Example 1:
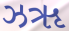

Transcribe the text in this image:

ઝૠ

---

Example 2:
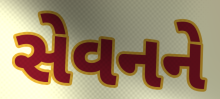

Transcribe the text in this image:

સેવનને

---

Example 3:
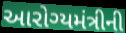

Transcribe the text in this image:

આરોગ્યમંત્રીની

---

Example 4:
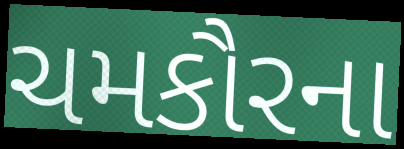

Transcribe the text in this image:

ચમકૌરના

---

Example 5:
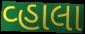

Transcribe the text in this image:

વ્હાલા